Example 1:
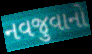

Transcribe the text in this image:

નવજુવાનો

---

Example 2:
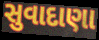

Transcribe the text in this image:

સુવાદાણા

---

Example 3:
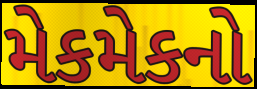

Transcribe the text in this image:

મેકમેકનો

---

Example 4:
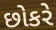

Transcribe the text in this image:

છોકરે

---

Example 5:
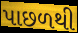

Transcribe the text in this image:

પાછળથી